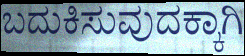
ಬದುಕಿಸುವುದಕ್ಕಾಗಿ